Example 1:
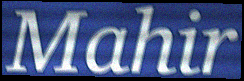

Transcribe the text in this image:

Mahir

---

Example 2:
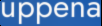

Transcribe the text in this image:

uppena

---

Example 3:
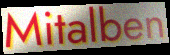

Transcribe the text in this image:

Mitalben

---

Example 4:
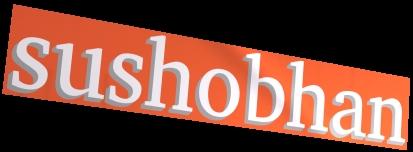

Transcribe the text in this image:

sushobhan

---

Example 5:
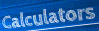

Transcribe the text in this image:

Calculators